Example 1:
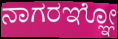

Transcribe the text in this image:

ನಾಗರಞ್ಞೋ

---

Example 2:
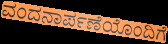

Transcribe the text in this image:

ವಂದನಾರ್ಪಣೆಯೊಂದಿಗೆ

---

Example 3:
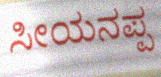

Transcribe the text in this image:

ಸೀಯನಪ್ಪ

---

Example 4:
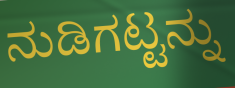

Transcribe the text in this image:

ನುಡಿಗಟ್ಟನ್ನು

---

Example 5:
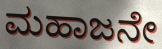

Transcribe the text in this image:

ಮಹಾಜನೇ